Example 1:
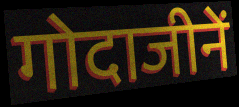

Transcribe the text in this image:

गोदाजीनें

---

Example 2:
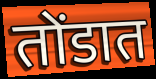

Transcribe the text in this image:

तोंडात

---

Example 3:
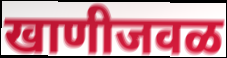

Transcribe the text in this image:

खाणीजवळ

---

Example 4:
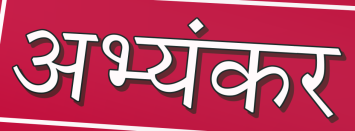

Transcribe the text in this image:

अभ्यंकर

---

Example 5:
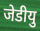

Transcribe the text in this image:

जेडीयु